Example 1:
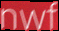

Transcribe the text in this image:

nwf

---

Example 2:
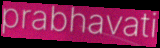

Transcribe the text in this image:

prabhavati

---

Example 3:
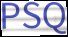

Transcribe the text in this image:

PSQ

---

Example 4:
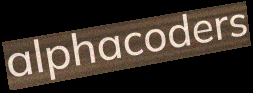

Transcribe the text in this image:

alphacoders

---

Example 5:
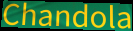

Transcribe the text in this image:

Chandola